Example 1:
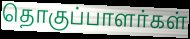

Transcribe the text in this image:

தொகுப்பாளர்கள்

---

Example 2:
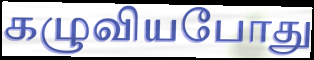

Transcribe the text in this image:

கழுவியபோது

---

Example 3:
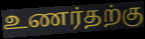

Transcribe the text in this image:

உணர்தற்கு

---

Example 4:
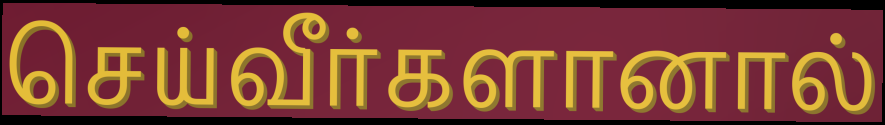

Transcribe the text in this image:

செய்வீர்களானால்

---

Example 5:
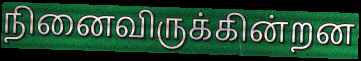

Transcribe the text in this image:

நினைவிருக்கின்றன